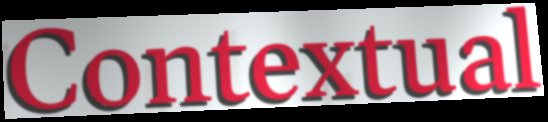
Contextual